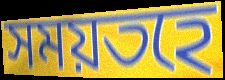
সময়তহে